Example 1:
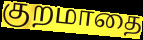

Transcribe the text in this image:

குறமாதை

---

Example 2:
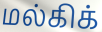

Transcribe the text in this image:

மல்கிக்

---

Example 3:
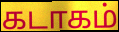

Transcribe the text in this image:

கடாகம்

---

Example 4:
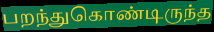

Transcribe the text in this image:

பறந்துகொண்டிருந்த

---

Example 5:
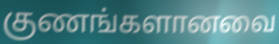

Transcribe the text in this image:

குணங்களானவை